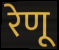
रेणू